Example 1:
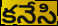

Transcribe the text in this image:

కనేసి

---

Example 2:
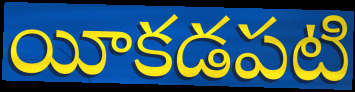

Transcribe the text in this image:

యీకడపటి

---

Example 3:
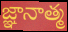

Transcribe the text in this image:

జ్ఞానాత్మ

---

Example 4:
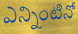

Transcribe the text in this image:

ఎన్నింటినో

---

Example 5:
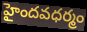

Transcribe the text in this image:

హైందవధర్మం